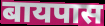
बायपास